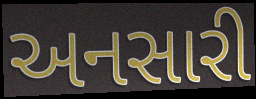
અનસારી